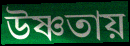
উষ্ণতায়